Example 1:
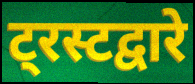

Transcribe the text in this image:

ट्रस्टद्वारे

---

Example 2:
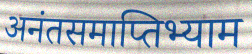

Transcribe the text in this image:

अनंतसमाप्तिभ्याम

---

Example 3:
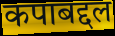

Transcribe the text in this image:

कपाबद्दल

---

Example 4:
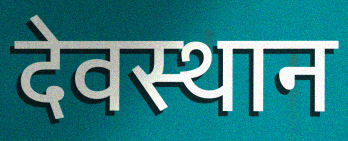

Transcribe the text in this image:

देवस्थान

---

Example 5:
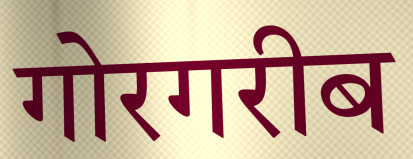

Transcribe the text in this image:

गोरगरीब